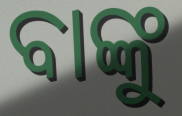
ବାଙ୍କୁ